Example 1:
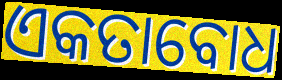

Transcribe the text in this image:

ଏକତାବୋଧ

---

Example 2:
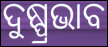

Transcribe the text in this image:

ଦୁଷ୍ପ୍ରଭାବ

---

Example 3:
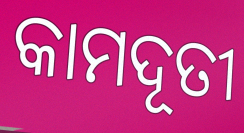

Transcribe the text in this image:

କାମଦୂତୀ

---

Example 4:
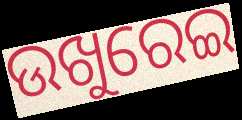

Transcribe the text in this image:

ଉଖୁରେଇ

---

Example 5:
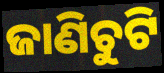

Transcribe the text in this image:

ଜାଣିଚୁଟି